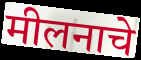
मीलनाचे